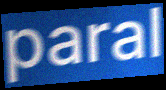
paral